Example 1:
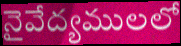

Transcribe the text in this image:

నైవేద్యములలో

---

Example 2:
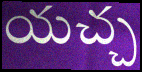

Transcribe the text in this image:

యచ్చ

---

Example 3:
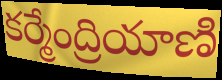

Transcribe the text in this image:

కర్మేంద్రియాణి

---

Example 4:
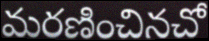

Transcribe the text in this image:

మరణించినచో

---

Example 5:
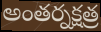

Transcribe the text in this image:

అంతర్నక్షత్ర